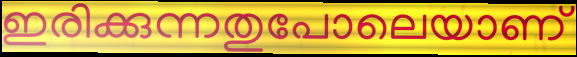
ഇരിക്കുന്നതുപോലെയാണ്